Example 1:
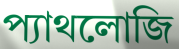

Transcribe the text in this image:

প্যাথলোজি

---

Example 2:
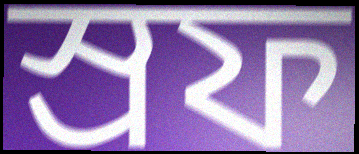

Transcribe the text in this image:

স্রফ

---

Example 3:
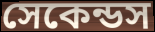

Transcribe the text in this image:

সেকেন্ডস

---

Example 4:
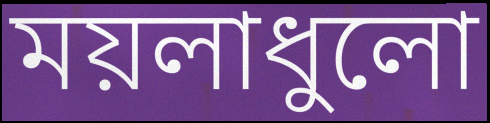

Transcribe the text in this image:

ময়লাধুলো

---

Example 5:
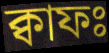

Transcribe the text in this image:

ক্বাফঃ